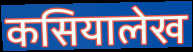
कसियालेख